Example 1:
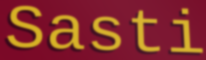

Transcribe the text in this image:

Sasti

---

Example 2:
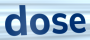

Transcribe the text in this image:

dose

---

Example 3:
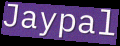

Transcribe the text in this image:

Jaypal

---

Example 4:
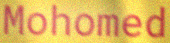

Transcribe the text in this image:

Mohomed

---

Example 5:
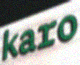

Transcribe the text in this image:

karo